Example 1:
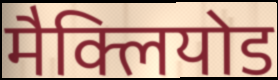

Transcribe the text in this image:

मैक्लियोड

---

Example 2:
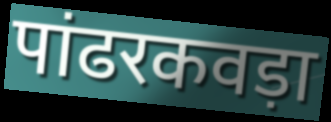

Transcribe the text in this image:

पांढरकवड़ा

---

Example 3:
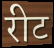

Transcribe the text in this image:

रीट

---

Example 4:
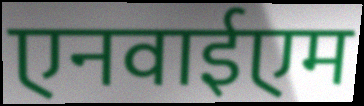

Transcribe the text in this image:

एनवाईएम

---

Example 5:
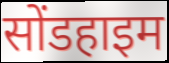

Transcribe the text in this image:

सोंडहाइम